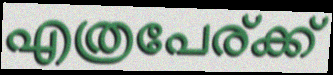
എത്രപേര്ക്ക്